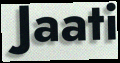
Jaati